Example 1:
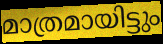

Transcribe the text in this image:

മാത്രമായിട്ടും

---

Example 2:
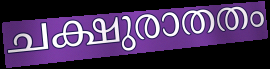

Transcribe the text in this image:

ചക്ഷുരാതതം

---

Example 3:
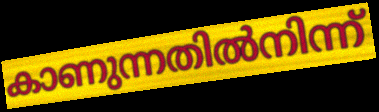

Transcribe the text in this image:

കാണുന്നതിൽനിന്ന്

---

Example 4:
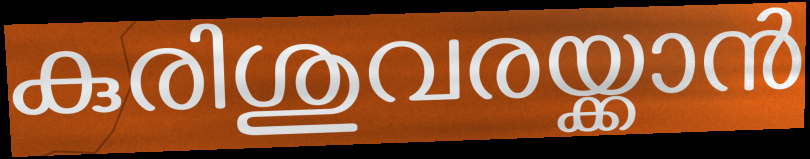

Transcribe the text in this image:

കുരിശുവരയ്ക്കാൻ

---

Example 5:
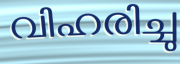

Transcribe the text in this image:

വിഹരിച്ചു